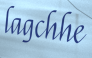
lagchhe